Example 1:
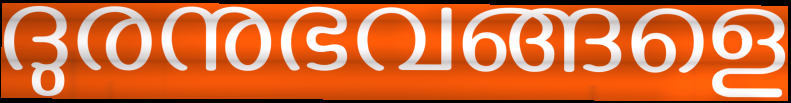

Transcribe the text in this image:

ദുരനുഭവങ്ങളെ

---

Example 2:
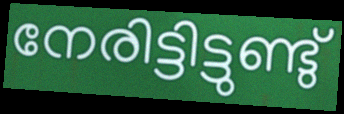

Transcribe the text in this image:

നേരിട്ടിട്ടുണ്ടു്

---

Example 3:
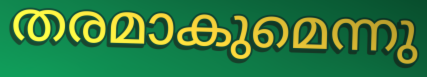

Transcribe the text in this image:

തരമാകുമെന്നു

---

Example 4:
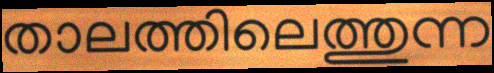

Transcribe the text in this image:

താലത്തിലെത്തുന്ന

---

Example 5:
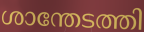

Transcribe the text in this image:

ശാന്തേടത്തി